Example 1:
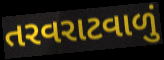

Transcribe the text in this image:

તરવરાટવાળું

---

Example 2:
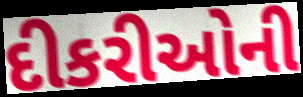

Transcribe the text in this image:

દીકરીઓની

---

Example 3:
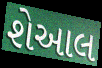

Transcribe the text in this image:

શેઆલ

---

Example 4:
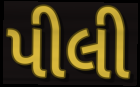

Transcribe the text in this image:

પીલી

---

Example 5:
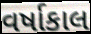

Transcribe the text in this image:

વર્ષાકાલ